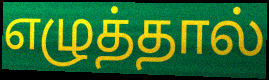
எழுத்தால்